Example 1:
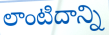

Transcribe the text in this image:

లాంటిదాన్ని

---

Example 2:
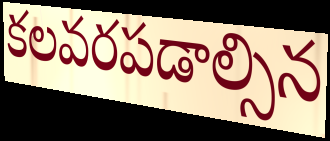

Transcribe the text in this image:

కలవరపడాల్సిన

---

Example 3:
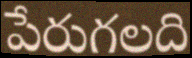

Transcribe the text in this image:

పేరుగలది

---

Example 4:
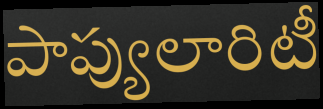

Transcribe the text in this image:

పాప్యులారిటీ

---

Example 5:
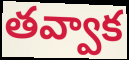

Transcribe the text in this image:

తవ్వాక